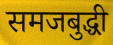
समजबुद्धी